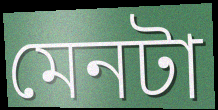
মেনটা